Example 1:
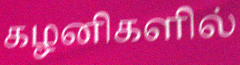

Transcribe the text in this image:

கழனிகளில்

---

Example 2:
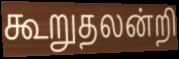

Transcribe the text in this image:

கூறுதலன்றி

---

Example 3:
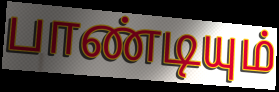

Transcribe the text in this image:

பாண்டியும்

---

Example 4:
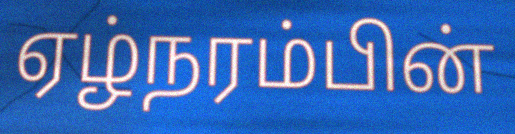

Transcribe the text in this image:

ஏழ்நரம்பின்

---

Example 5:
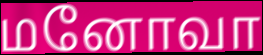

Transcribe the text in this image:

மனோவா